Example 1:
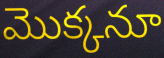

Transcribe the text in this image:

మొక్కనూ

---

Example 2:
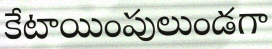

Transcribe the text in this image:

కేటాయింపులుండగా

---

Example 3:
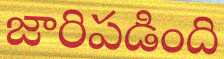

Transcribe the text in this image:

జారిపడింది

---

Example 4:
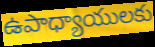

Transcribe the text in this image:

ఉపాధ్యాయులకు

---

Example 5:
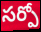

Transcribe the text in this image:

సర్పో